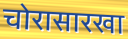
चोरासारखा